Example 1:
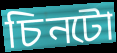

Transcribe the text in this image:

চিনটো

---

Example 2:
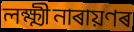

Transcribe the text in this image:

লক্ষ্মীনাৰায়ণৰ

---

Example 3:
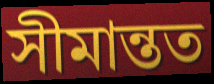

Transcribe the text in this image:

সীমান্তত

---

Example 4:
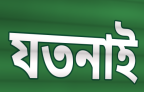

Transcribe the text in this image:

যতনাই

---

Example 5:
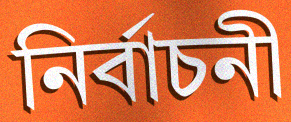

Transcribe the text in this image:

নিৰ্বাচনী